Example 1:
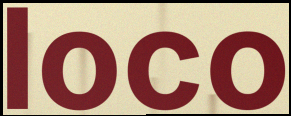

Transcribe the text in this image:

loco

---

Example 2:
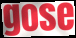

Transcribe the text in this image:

gose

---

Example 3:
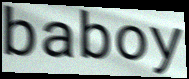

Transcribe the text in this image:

baboy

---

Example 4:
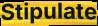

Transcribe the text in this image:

Stipulate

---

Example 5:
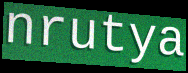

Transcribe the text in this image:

nrutya